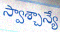
స్వాశ్చాన్యే